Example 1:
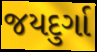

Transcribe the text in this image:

જયદુર્ગા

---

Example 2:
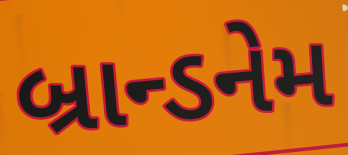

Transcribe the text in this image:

બ્રાન્ડનેમ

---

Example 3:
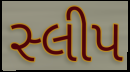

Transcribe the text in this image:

સ્લીપ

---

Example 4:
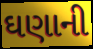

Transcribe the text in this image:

ઘણાની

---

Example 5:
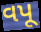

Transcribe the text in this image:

વપૂ